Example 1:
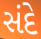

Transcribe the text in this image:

સંદે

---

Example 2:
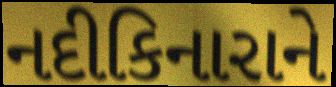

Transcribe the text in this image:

નદીકિનારાને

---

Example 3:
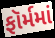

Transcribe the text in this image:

ફૉર્મમાં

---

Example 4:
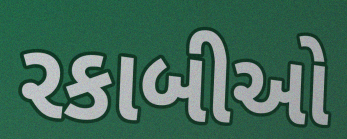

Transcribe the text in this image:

રકાબીઓ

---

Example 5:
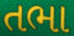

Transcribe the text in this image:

તભા